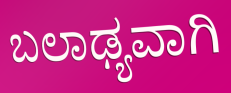
ಬಲಾಢ್ಯವಾಗಿ